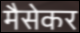
मैसेकर